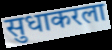
सुधाकरला